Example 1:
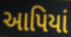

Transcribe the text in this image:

આપિયાં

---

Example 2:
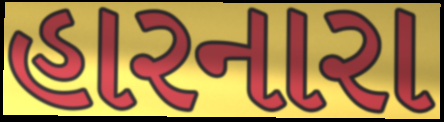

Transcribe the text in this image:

હારનારા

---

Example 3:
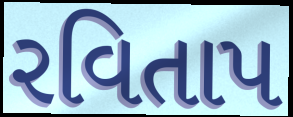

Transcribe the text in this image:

રવિતાપ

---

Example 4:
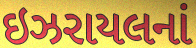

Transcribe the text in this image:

ઇઝરાયલનાં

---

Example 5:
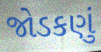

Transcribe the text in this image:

જોડકણું